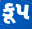
કૂપ